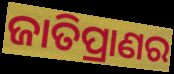
ଜାତିପ୍ରାଣର